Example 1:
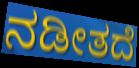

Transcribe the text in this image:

ನಡೀತದೆ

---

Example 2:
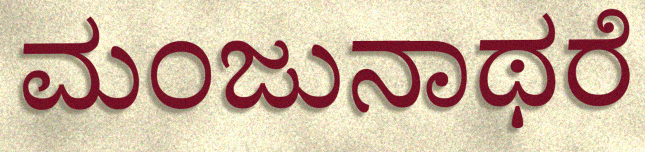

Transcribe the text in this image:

ಮಂಜುನಾಥರೆ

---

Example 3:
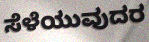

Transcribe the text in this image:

ಸೆಳೆಯುವುದರ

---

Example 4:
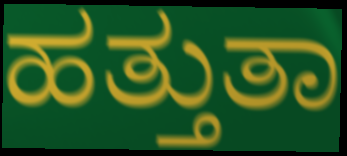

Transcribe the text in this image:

ಹತ್ತುತಾ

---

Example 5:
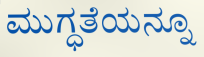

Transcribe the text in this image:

ಮುಗ್ಧತೆಯನ್ನೂ